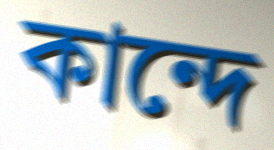
কান্দে